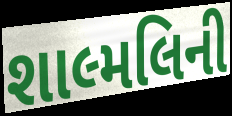
શાલ્મલિની